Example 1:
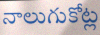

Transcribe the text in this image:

నాలుగుకోట్ల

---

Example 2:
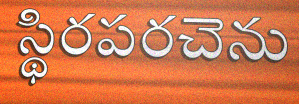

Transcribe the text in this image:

స్థిరపరచెను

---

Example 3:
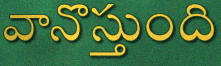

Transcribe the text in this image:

వానొస్తుంది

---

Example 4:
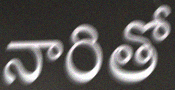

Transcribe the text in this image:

నారితో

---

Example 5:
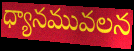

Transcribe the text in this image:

ధ్యానమువలన